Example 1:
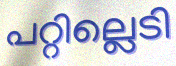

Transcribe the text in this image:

പറ്റില്ലെടി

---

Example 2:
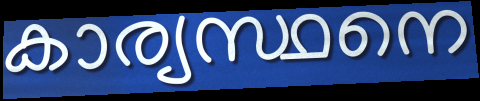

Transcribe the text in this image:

കാര്യസ്ഥനെ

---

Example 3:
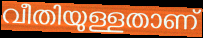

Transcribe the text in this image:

വീതിയുള്ളതാണ്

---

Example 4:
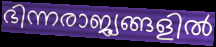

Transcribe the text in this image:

ഭിന്നരാജ്യങ്ങളിൽ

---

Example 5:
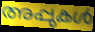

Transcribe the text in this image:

അപ്പുകൾ